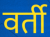
वर्ती